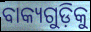
ବାକ୍ୟଗୁଡ଼ିକୁ